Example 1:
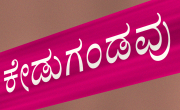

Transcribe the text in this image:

ಕೇಡುಗಂಡವು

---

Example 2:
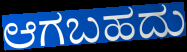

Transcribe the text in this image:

ಆಗಬಹದು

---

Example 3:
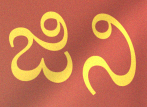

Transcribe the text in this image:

ಜಿನಿ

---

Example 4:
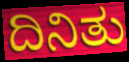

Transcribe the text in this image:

ದಿನಿತು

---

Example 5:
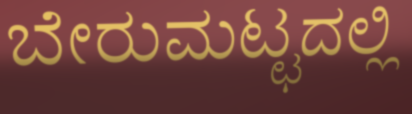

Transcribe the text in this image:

ಬೇರುಮಟ್ಟದಲ್ಲಿ